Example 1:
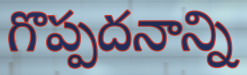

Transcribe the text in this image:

గొప్పదనాన్ని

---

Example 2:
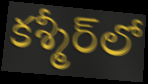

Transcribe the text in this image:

కశ్మీర్‌లో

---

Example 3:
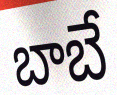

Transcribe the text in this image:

బాబే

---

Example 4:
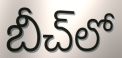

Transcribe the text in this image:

బీచ్‌లో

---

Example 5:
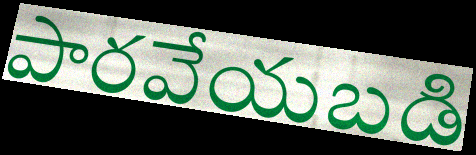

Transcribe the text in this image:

పారవేయబడి